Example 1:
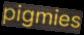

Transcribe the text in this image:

pigmies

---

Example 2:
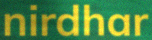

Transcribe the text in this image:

nirdhar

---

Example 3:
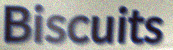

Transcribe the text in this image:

Biscuits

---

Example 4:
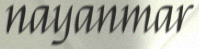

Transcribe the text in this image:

nayanmar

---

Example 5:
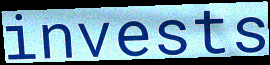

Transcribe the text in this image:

invests